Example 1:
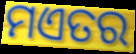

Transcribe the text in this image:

ମଏତର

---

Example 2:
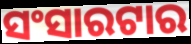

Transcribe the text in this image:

ସଂସାରଟାର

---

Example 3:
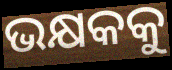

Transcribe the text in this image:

ଭକ୍ଷକକୁ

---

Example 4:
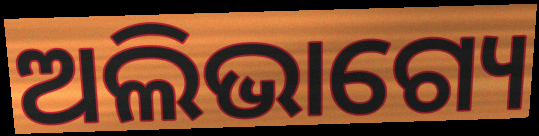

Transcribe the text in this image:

ଅଲିଭାଗ୍ୟେ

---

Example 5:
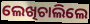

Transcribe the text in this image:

ଲେଖିଚାଲିଲେ